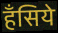
हँसिये